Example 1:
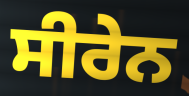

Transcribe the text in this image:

ਸੀਰੇਨ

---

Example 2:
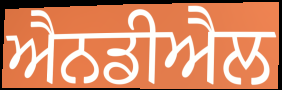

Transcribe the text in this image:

ਐਨਡੀਐਲ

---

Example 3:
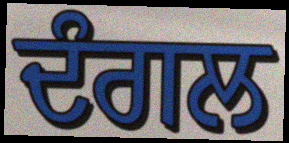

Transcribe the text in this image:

ਦੰਗਲ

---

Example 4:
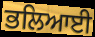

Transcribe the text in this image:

ਭਲਿਆਈ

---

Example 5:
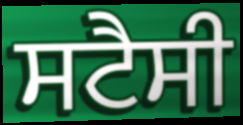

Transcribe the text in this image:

ਸਟੈਸੀ